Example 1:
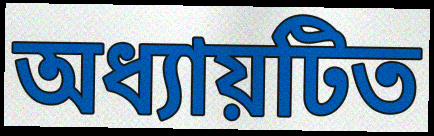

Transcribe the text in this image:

অধ্যায়টিত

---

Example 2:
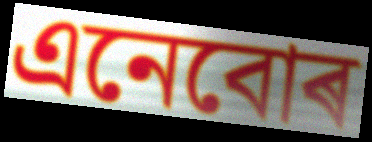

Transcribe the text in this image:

এনেবোৰ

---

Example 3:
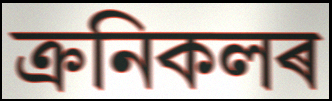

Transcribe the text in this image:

ক্ৰনিকলৰ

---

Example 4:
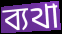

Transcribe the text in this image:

ব্যথা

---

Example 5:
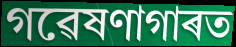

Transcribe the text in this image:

গৱেষণাগাৰত